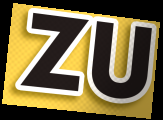
ZU